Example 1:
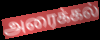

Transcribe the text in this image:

அரைக்கல்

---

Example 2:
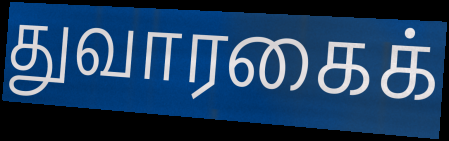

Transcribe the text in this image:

துவாரகைக்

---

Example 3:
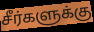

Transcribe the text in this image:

சீர்களுக்கு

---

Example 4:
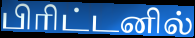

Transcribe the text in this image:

பிரிட்டனில்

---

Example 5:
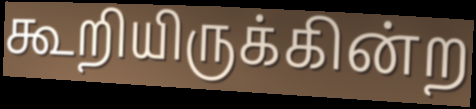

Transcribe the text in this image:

கூறியிருக்கின்ற